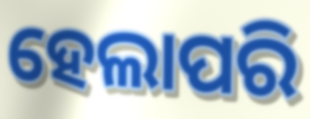
ହେଲାପରି